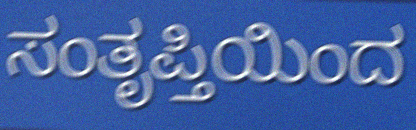
ಸಂತೃಪ್ತಿಯಿಂದ